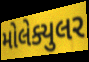
મોલેક્યુલર